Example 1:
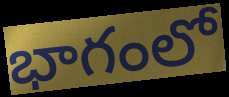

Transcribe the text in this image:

భాగంలో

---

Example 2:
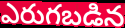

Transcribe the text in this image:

ఎరుగబడిన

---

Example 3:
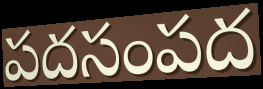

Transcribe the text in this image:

పదసంపద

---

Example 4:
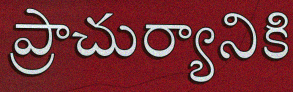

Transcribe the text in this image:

ప్రాచుర్యానికి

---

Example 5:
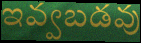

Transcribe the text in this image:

ఇవ్వబడవు